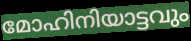
മോഹിനിയാട്ടവും